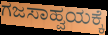
ಗಜಸಾಹ್ವಯಕ್ಕೆ